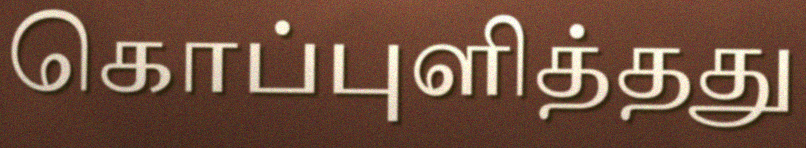
கொப்புளித்தது